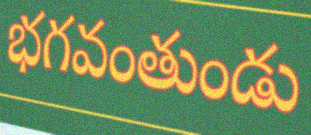
భగవంతుండు